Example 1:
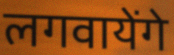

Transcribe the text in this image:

लगवायेंगे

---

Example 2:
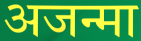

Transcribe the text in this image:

अजन्‍मा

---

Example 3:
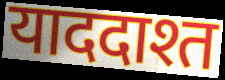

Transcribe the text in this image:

याददाश्त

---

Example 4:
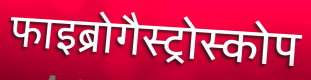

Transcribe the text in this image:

फाइब्रोगैस्ट्रोस्कोप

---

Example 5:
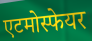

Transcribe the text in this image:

एटमोस्फेयर